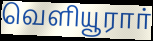
வெளியூரார்